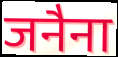
जनैना